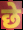
छे